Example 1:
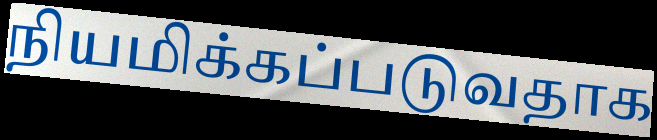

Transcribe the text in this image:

நியமிக்கப்படுவதாக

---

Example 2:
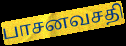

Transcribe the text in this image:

பாசனவசதி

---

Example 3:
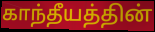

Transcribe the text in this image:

காந்தீயத்தின்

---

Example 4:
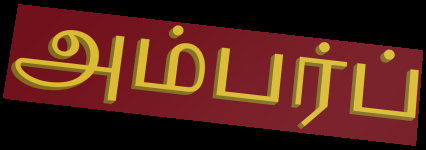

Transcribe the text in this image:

அம்பர்ப்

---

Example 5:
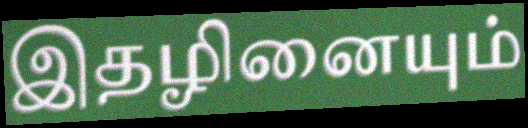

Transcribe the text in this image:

இதழினையும்